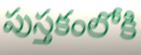
పుస్తకంలోకి